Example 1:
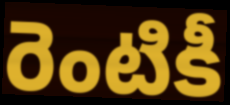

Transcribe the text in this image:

రెంటికీ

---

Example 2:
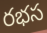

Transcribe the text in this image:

రభస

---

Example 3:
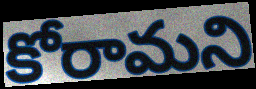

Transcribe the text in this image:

కోరామని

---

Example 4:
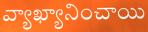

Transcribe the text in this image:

వ్యాఖ్యానించాయి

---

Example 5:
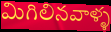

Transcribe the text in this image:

మిగిలినవాళ్ళ